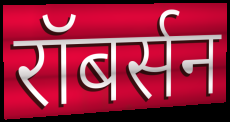
रॉबर्सन